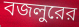
বজলুরের